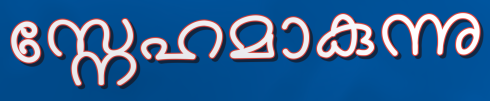
സ്നേഹമാകുന്നു